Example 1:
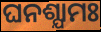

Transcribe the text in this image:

ଘନଶ୍ଯାମଃ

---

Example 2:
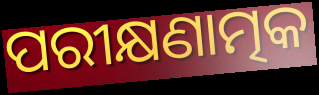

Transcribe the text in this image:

ପରୀକ୍ଷଣାତ୍ମକ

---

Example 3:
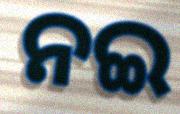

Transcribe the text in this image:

ନଇ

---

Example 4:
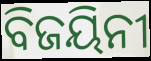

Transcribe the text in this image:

ବିଜୟିନୀ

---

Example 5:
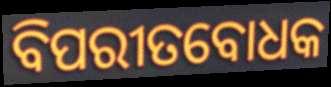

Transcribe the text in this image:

ବିପରୀତବୋଧକ